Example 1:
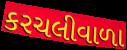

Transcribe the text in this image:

કરચલીવાળા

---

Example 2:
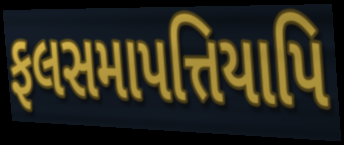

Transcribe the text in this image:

ફલસમાપત્તિયાપિ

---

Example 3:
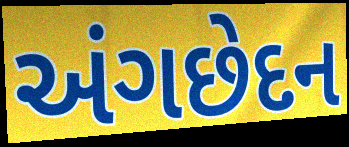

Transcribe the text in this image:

અંગછેદન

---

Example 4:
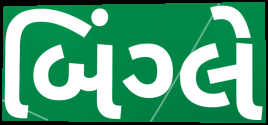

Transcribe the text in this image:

બિંગ્લે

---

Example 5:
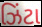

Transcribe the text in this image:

ઝિંટા